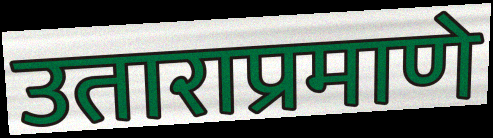
उताराप्रमाणे